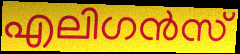
എലിഗൻസ്